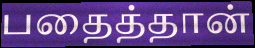
பதைத்தான்